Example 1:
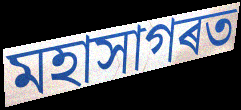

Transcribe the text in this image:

মহাসাগৰত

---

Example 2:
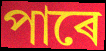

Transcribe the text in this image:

পাৰে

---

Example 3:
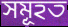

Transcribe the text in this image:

সমূহত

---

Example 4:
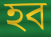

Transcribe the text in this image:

হব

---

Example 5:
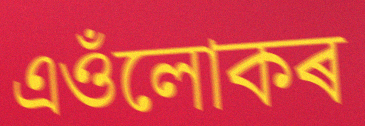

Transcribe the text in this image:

এওঁলোকৰ